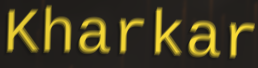
Kharkar